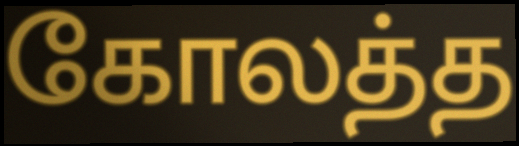
கோலத்த